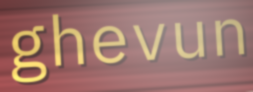
ghevun